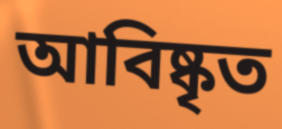
আবিষ্কৃত